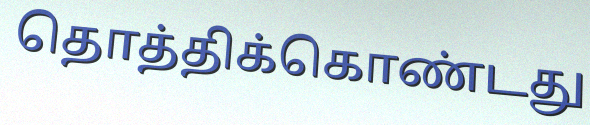
தொத்திக்கொண்டது